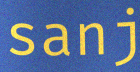
sanj